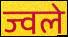
ज्वले